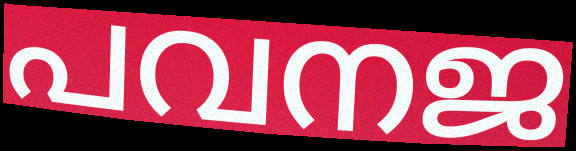
പവനജ